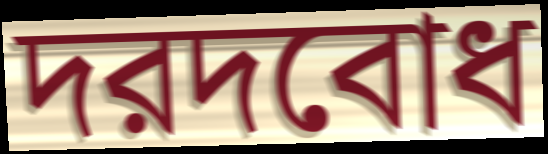
দরদবোধ